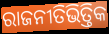
ରାଜନୀତିଭିତ୍ତିକ